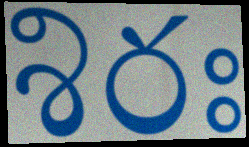
శిరః